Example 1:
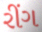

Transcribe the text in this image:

રીંગ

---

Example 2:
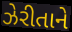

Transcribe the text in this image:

ઝેરીતાને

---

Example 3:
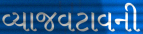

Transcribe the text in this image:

વ્યાજવટાવની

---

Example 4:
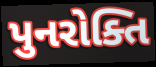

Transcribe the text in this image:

પુનરોક્તિ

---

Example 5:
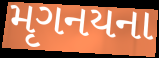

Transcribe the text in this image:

મૃગનયના